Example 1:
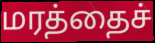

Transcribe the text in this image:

மரத்தைச்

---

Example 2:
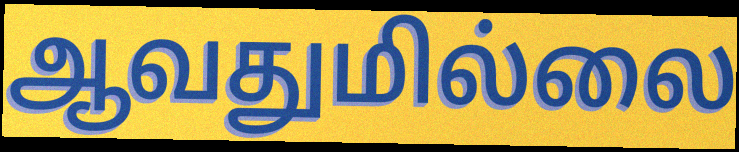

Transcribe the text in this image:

ஆவதுமில்லை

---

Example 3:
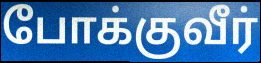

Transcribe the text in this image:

போக்குவீர்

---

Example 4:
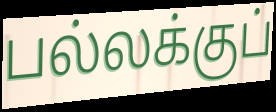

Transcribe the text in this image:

பல்லக்குப்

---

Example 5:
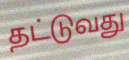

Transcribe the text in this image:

தட்டுவது